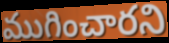
ముగించారని